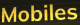
Mobiles